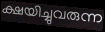
ക്ഷയിച്ചുവരുന്ന